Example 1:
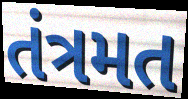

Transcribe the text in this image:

તંત્રમત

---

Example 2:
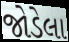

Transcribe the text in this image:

જોડેલા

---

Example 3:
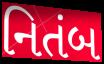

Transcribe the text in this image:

નિતંબ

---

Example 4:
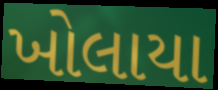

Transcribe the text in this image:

ખોલાયા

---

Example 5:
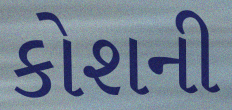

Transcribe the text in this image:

કોશની